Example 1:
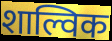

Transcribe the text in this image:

शाल्विक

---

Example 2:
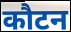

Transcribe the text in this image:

कौटन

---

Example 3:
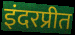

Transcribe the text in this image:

इंदरप्रीत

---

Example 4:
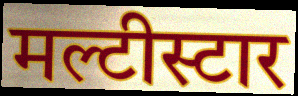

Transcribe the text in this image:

मल्टीस्टार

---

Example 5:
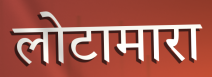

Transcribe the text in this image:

लोटामारा